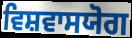
ਵਿਸ਼ਵਾਸਯੋਗ